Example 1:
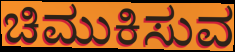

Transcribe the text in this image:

ಚಿಮುಕಿಸುವ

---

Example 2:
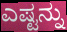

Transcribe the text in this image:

ಎಷ್ಟನ್ನು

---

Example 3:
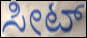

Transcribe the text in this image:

ಸೀಟ್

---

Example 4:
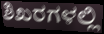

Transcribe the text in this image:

ಶಿಖರಗಳಲ್ಲಿ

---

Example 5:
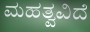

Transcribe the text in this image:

ಮಹತ್ವವಿದೆ